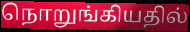
நொறுங்கியதில்